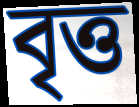
বৃত্ত